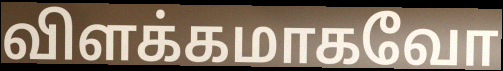
விளக்கமாகவோ